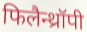
फिलैन्थ्रॉपी